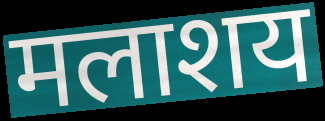
मलाशय